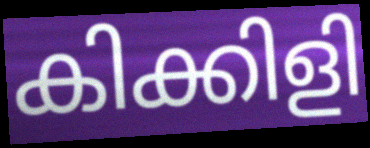
കിക്കിളി